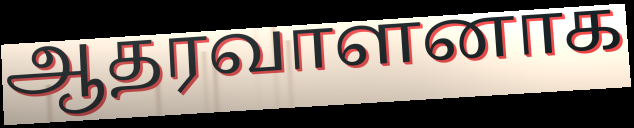
ஆதரவாளனாக